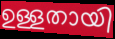
ഉള്ളതായി